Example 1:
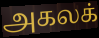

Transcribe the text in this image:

அகலக்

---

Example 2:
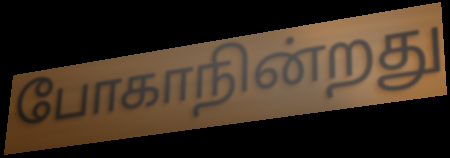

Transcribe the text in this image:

போகாநின்றது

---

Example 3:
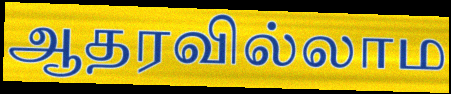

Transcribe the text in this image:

ஆதரவில்லாம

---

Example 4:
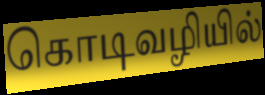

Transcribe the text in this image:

கொடிவழியில்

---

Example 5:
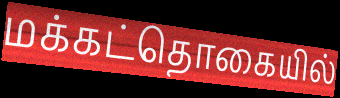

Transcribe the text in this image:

மக்கட்தொகையில்